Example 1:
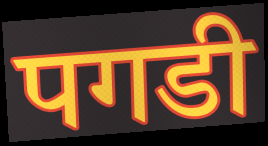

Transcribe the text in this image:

पगडी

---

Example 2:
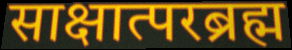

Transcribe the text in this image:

साक्षात्परब्रह्म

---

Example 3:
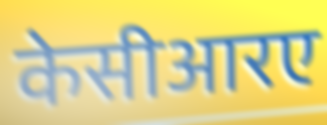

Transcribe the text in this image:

केसीआरए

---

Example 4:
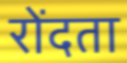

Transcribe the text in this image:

रोंदता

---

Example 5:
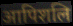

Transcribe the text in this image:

आपिशलि